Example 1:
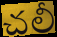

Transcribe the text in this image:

చలీ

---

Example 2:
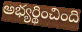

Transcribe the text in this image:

అభ్యర్థించింది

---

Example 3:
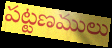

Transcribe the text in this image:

పట్టణములు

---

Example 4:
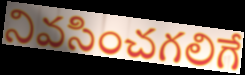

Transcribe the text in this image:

నివసించగలిగే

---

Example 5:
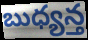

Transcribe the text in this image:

బుధ్యన్త